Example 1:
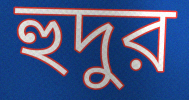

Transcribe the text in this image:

হুদুর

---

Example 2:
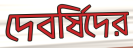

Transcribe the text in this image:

দেবর্ষিদের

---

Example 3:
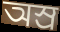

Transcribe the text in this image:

অস্র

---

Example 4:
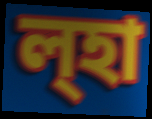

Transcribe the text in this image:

ল্হা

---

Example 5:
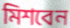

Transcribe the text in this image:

মিশবেন